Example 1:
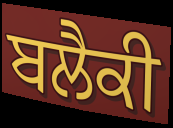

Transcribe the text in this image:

ਬਲੈਕੀ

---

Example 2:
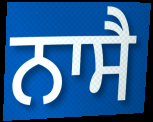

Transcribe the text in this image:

ਨਾਸੈ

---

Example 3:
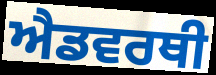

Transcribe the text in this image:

ਐਡਵਰਥੀ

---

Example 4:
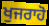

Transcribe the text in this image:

ਖੁਜਰਾਹੋ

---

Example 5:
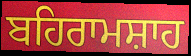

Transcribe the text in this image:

ਬਹਿਰਾਮਸ਼ਾਹ